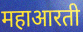
महाआरती